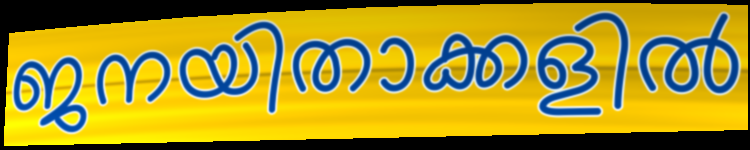
ജനയിതാക്കളിൽ